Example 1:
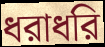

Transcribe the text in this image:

ধরাধরি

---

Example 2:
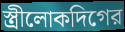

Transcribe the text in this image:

স্ত্রীলোকদিগের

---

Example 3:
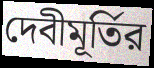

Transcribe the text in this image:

দেবীমূর্তির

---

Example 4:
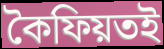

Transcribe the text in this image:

কৈফিয়তই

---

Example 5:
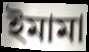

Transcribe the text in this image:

ইমামা